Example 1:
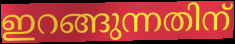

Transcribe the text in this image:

ഇറങ്ങുന്നതിന്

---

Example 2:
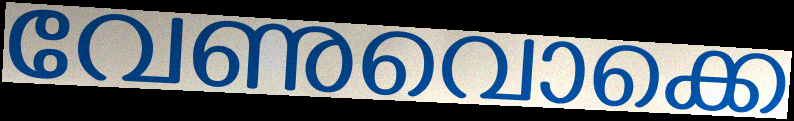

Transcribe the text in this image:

വേണുവൊക്കെ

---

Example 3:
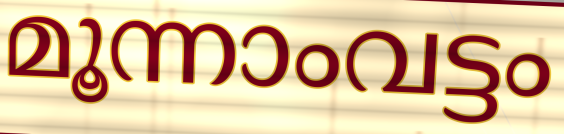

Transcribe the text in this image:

മൂന്നാംവട്ടം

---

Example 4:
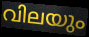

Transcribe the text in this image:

വിലയും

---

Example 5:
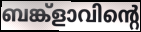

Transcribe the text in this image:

ബങ്ക്ളാവിന്റെ